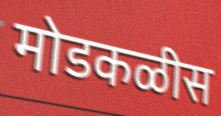
मोडकळीस